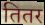
तितर